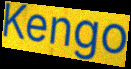
Kengo